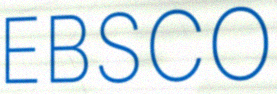
EBSCO